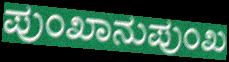
ಪುಂಖಾನುಪುಂಖ